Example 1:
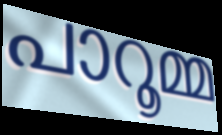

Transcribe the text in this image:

പാറൂമ്മ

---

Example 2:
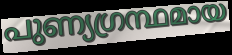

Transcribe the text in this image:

പുണ്യഗ്രന്ഥമായ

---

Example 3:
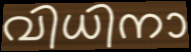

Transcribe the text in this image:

വിധിനാ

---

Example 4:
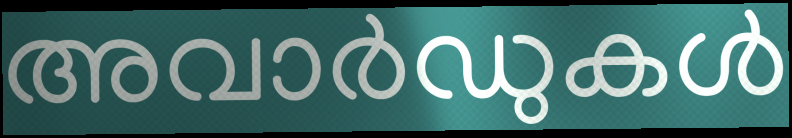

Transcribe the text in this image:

അവാർഡുകൾ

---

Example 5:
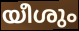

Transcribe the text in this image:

യീശും